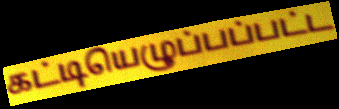
கட்டியெழுப்பப்பட்ட